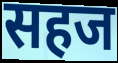
सहज